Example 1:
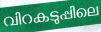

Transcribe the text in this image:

വിറകടുപ്പിലെ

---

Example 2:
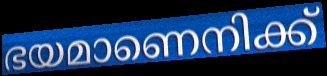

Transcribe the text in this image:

ഭയമാണെനിക്ക്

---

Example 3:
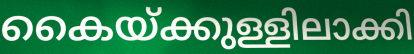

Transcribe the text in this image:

കൈയ്ക്കുള്ളിലാക്കി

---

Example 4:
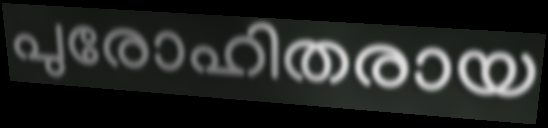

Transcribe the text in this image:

പുരോഹിതരായ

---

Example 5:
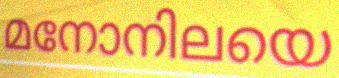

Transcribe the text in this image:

മനോനിലയെ